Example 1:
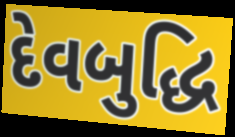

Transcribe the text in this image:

દેવબુદ્ધિ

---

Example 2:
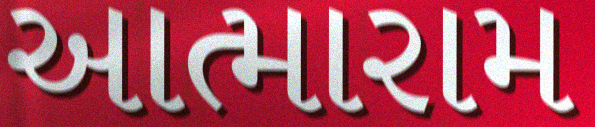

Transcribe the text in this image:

આત્મારામ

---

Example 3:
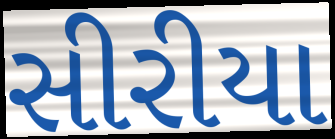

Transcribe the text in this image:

સીરીયા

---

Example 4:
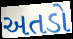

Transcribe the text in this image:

અતડો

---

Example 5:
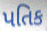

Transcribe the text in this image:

પતિક